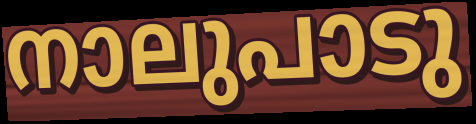
നാലുപാടു